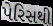
પેરિસથી